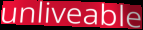
unliveable